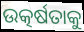
ଉତ୍କର୍ଷତାକୁ